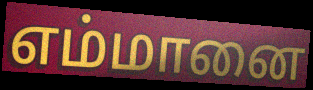
எம்மானை